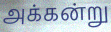
அக்கன்று